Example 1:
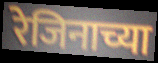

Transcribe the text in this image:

रेजिनाच्या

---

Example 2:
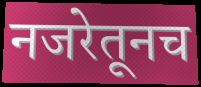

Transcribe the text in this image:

नजरेतूनच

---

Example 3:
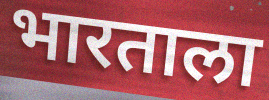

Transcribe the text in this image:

भारताला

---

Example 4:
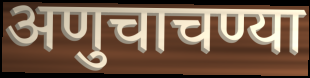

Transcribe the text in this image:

अणुचाचण्या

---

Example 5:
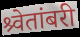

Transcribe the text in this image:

श्र्वेतांबरी